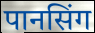
पानसिंग